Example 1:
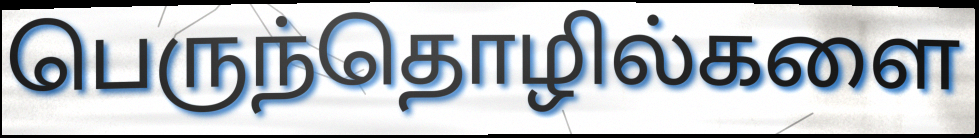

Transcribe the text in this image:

பெருந்தொழில்களை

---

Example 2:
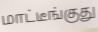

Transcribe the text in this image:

மாட்டீங்குது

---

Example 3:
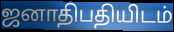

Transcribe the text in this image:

ஜனாதிபதியிடம்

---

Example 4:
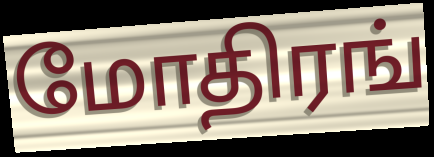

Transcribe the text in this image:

மோதிரங்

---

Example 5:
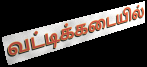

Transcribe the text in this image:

வட்டிக்கடையில்